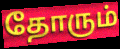
தோரும்